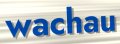
wachau